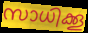
സാധിക്കൂ